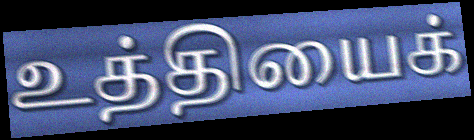
உத்தியைக்